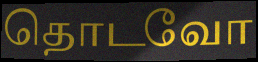
தொடவோ